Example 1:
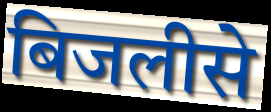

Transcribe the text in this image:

बिजलीसे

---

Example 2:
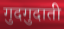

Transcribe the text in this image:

गुदगुदाती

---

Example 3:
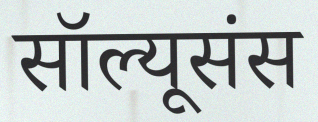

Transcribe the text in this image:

सॉल्यूसंस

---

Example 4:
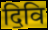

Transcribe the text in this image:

दि॒वि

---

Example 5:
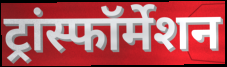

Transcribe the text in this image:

ट्रांस्फॉर्मेशन